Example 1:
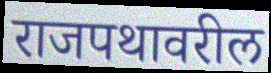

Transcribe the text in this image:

राजपथावरील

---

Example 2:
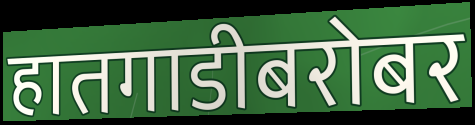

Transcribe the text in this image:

हातगाडीबरोबर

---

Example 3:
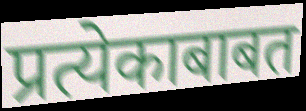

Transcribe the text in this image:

प्रत्येकाबाबत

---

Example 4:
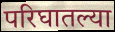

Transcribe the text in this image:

परिघातल्या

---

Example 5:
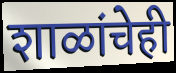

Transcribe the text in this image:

शाळांचेही